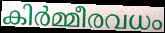
കിർമ്മീരവധം